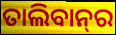
ତାଲିବାନ୍‌ର